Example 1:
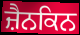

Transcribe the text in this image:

ਜ਼ੈਨਕਿਨ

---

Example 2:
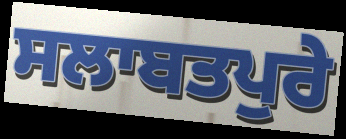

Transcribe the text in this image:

ਸਲਾਬਤਪੁਰੇ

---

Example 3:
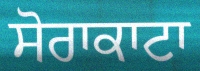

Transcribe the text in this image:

ਸੋਰਾਕਾਟਾ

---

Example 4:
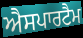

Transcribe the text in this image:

ਐਸਪਾਰਟੈਮ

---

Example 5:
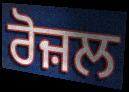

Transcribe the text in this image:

ਰੋਜ਼ਲ